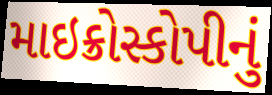
માઇક્રોસ્કોપીનું